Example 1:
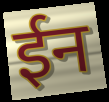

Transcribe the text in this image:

ईन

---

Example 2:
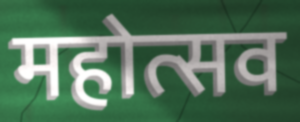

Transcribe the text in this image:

महोत्सव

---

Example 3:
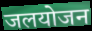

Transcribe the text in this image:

जलयोजन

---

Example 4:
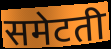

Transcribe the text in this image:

समेटती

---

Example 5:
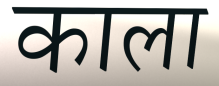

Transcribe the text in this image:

काला